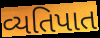
વ્યતિપાત